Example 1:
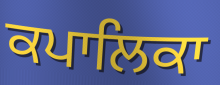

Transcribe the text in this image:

ਕਪਾਲਿਕਾ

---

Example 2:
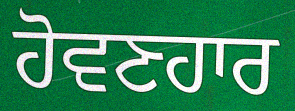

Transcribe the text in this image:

ਹੋਵਣਹਾਰ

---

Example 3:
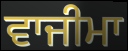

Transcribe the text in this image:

ਵਾਜੀਮਾ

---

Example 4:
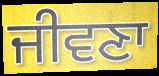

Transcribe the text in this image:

ਜੀਵਣਾ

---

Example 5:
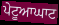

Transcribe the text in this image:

ਪੇਟੂਆਘਾਟ